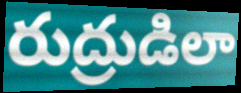
రుద్రుడిలా